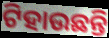
ଟିହାଉଛନ୍ତି